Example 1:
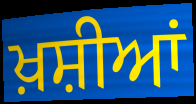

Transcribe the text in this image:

ਖ਼ਸ਼ੀਆਂ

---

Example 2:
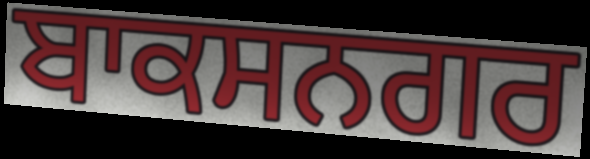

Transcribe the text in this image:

ਬਾਕਸਨਗਰ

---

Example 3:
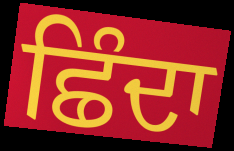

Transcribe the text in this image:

ਛਿੰਦਾ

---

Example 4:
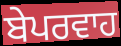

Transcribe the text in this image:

ਬੇਪਰਵਾਹ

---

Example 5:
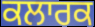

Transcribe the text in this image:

ਕਲਾਰਕ